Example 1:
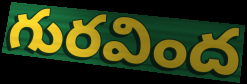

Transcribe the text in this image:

గురవింద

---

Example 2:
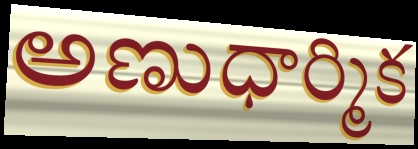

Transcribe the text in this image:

అణుధార్మిక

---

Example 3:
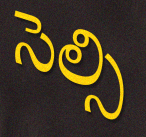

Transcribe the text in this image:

సెల్సి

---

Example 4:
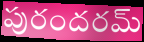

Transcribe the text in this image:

పురందరమ్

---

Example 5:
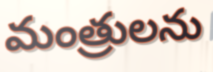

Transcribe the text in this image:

మంత్రులను